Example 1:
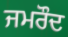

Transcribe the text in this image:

ਜਮਰੌਦ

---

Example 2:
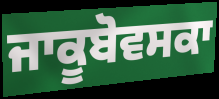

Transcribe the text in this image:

ਜਾਕੂਬੋਵਸਕਾ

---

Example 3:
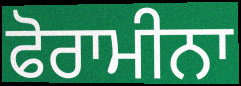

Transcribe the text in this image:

ਫੋਰਾਮੀਨਾ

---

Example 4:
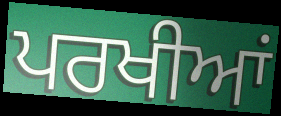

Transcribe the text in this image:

ਪਰਖੀਆਂ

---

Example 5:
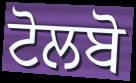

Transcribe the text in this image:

ਟੋਲਬੋ